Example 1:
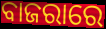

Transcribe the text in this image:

ବାଜରାରେ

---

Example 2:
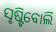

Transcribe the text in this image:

ସୃଷ୍ଟିବୋଲି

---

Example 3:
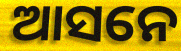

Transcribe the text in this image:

ଆସନେ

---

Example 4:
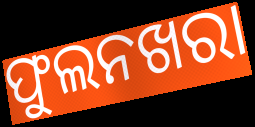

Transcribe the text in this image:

ଫୁଲନଖରା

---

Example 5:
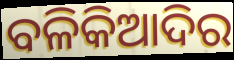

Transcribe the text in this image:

ବଳିକିଆଦିର